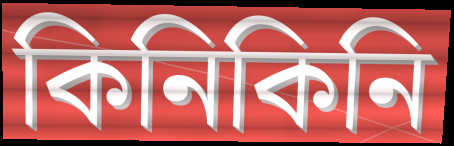
কিনিকিনি